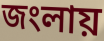
জংলায়